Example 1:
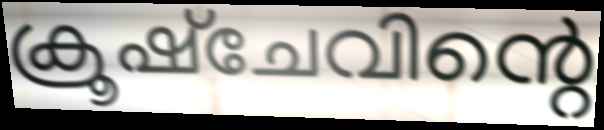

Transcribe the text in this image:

ക്രൂഷ്ചേവിന്റെ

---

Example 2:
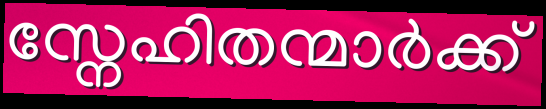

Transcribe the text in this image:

സ്നേഹിതന്മാർക്ക്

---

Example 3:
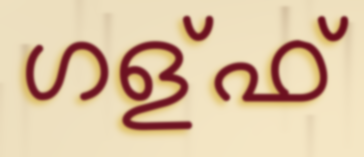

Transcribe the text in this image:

ഗള്ഫ്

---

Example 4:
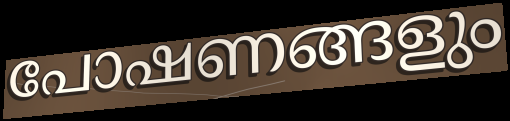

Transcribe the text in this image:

പോഷണങ്ങളും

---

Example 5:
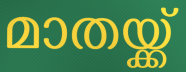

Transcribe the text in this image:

മാതയ്ക്ക്